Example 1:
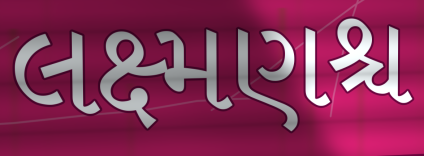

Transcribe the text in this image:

લક્ષ્મણશ્ચ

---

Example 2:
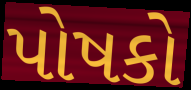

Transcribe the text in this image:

પોષકો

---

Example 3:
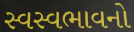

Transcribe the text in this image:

સ્વસ્વભાવનો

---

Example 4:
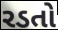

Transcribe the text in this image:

રડતો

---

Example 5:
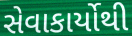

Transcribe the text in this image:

સેવાકાર્યોથી